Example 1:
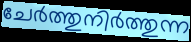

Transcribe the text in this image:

ചേർത്തുനിർത്തുന്ന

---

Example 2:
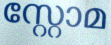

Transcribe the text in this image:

സ്റ്റോമ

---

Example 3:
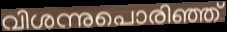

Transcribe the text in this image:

വിശന്നുപൊരിഞ്ഞ്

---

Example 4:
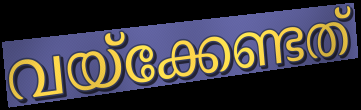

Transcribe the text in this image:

വയ്ക്കേണ്ടത്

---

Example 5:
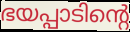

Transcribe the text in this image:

ഭയപ്പാടിന്റെ